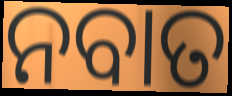
ନବାତ